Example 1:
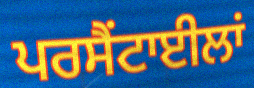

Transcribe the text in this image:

ਪਰਸੈਂਟਾਈਲਾਂ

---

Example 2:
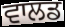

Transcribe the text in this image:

ਵਾਲਡ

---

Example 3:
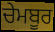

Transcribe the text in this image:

ਚੇਮਬੂਰ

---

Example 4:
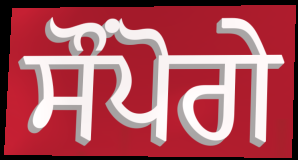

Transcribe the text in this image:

ਸੌਂਪੋਗੇ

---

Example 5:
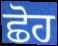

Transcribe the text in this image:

ਛੋਹ